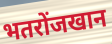
भतरोंजखान